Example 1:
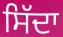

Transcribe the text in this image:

ਸਿੱਦਾ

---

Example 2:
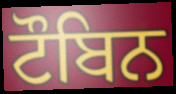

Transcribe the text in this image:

ਟੌਬਿਨ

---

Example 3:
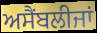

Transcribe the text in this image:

ਅਸੈਂਬਲੀਜਾਂ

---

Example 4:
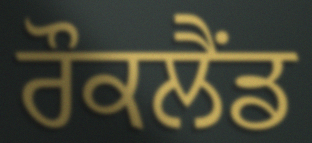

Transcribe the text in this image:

ਰੌਕਲੈਂਡ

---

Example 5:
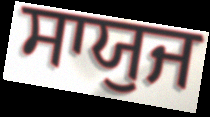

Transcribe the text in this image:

ਸਾਯੁਜ